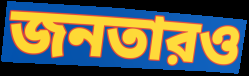
জনতারও